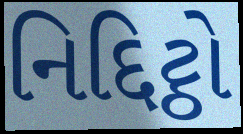
નિદ્દિટ્ઠો